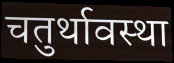
चतुर्थावस्था